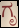
ಗೃ